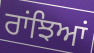
ਰਾਂਝਿਆਂ